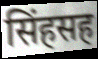
सिंहसह